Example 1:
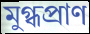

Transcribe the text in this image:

মুগ্ধপ্রাণ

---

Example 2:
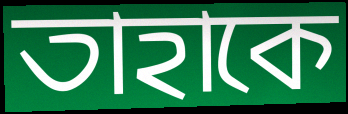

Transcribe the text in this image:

তাহাকে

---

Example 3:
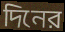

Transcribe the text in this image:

দিনের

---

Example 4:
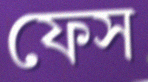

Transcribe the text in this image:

ফেস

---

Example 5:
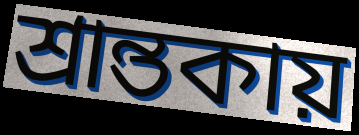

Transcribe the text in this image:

শ্রান্তকায়